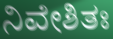
ನಿವೇಶಿತಃ